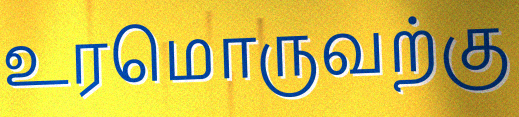
உரமொருவற்கு